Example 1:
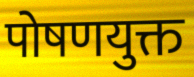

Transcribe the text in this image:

पोषणयुक्त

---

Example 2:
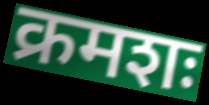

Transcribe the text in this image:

क्रमशः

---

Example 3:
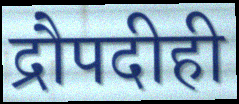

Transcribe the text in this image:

द्रौपदीही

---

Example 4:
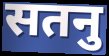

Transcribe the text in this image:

सतनु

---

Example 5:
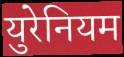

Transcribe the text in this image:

युरेनियम